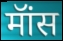
मॉंस